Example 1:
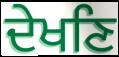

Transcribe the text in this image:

ਦੇਖਣਿ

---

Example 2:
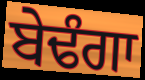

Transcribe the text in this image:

ਬੇਢੰਗਾ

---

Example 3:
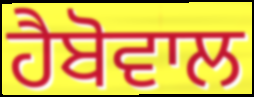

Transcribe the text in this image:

ਹੈਬੋਵਾਲ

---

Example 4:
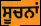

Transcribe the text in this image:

ਸੂਚਨਾਂ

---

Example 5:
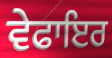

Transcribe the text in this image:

ਵੇਫਾਇਰ